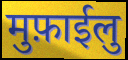
मुफ़ाईलु